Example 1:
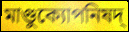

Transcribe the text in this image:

মাণ্ডুক্যোপনিষদ্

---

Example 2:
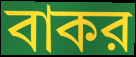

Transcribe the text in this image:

বাকর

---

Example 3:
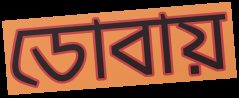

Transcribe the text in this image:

ডোবায়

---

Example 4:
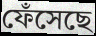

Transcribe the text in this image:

ফেঁসেছে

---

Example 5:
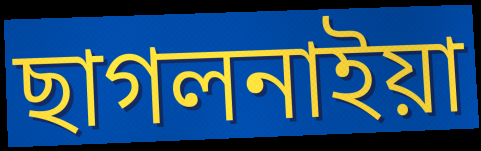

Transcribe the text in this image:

ছাগলনাইয়া